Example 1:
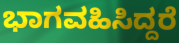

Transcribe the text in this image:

ಭಾಗವಹಿಸಿದ್ದರೆ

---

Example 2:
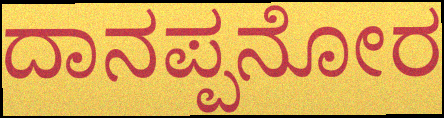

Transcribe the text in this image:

ದಾನಪ್ಪನೋರ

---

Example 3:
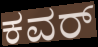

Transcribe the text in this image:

ಕವರ್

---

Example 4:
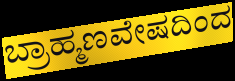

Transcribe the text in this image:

ಬ್ರಾಹ್ಮಣವೇಷದಿಂದ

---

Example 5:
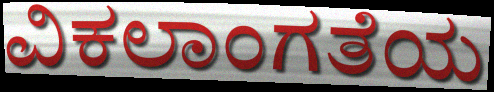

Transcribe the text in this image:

ವಿಕಲಾಂಗತೆಯ